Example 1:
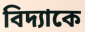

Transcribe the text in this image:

বিদ্যাকে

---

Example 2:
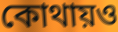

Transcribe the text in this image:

কোথায়ও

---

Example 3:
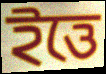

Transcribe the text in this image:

ইত্তে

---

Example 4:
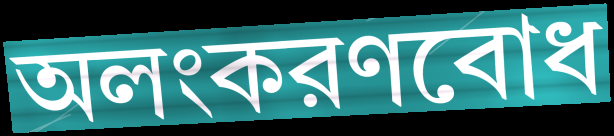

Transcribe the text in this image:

অলংকরণবোধ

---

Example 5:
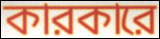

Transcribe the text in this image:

কারকারে